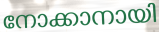
നോക്കാനായി